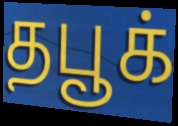
தபூக்